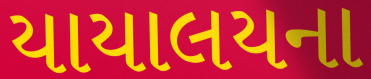
યાયાલયના